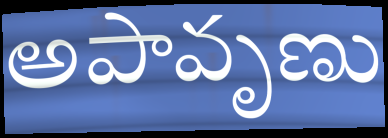
అపావృణు